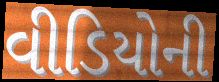
વીડિયોની